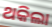
ଥକିଲା